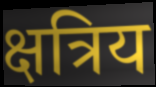
क्षत्रिय